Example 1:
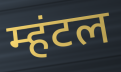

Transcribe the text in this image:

म्हंटल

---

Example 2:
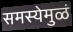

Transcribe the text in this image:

समस्येमुळं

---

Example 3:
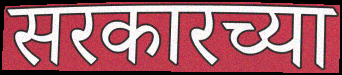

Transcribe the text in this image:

सरकारच्या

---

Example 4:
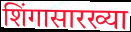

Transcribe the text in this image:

शिंगासारख्या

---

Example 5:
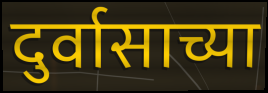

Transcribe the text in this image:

दुर्वासाच्या